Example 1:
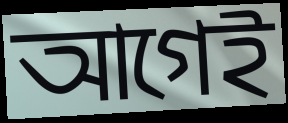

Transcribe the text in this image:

আগেই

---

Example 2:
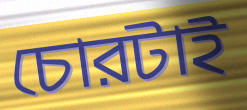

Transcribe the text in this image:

চোরটাই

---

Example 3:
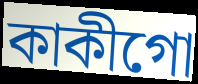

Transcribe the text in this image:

কাকীগো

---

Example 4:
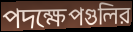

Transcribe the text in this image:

পদক্ষেপগুলির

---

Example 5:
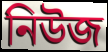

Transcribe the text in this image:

নিউজ